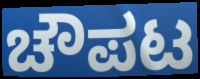
ಚೌಪಟ